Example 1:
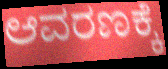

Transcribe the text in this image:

ಆವರಣಕ್ಕೆ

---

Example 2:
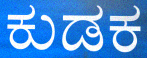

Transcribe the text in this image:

ಕುಡಕ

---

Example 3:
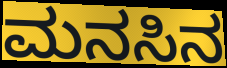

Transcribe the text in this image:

ಮನಸಿನ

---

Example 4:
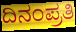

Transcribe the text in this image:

ದಿನಂಪ್ರತಿ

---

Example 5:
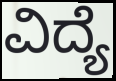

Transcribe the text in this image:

ವಿದ್ಯೆ